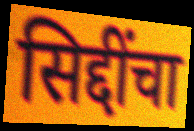
सिद्दींचा